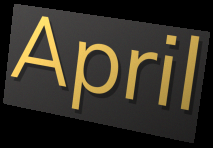
April